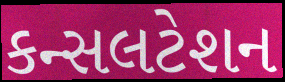
કન્સલટેશન